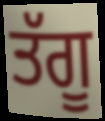
ਤੱਗੂ